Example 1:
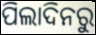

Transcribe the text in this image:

ପିଲାଦିନରୁ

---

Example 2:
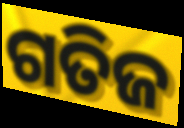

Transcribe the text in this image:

ଗତିଜ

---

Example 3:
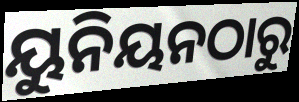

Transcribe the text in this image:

ୟୁନିୟନଠାରୁ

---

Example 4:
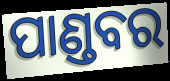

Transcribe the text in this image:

ପାଣ୍ଡବର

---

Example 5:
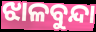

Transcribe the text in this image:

ଝାଳବୁନ୍ଦା